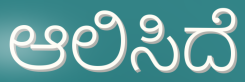
ಆಲಿಸಿದೆ